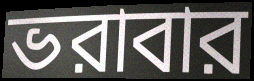
ভরাবার